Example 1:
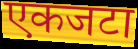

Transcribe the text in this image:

एकजटा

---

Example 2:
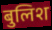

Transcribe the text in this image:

बुलिश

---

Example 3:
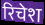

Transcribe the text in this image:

रिचेश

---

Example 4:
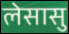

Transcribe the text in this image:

लेसासु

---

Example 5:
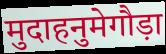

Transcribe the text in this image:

मुदाहनुमेगौड़ा